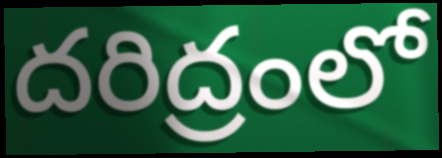
దరిద్రంలో